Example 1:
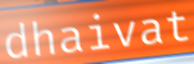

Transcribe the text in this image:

dhaivat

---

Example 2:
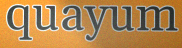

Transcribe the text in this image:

quayum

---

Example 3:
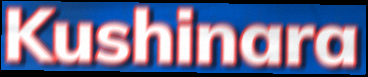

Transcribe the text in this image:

Kushinara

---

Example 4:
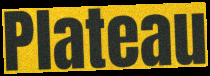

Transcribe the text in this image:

Plateau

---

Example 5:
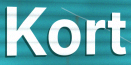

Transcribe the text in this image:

Kort